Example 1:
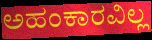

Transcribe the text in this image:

ಅಹಂಕಾರವಿಲ್ಲ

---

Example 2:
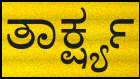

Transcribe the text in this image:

ತಾರ್ಕ್ಷ್ಯ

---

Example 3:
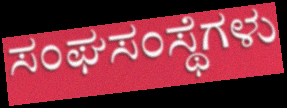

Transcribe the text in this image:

ಸಂಘಸಂಸ್ಥೆಗಳು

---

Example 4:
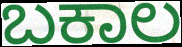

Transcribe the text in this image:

ಬಕಾಲ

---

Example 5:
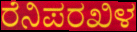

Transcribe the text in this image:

ರೆನಿಪರಖಿಳ